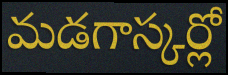
మడగాస్కర్లో